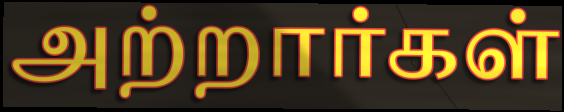
அற்றார்கள்